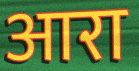
आरा